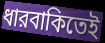
ধারবাকিতেই